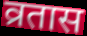
व्रतास